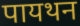
पायथन